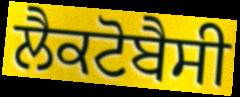
ਲੈਕਟੋਬੈਸੀ